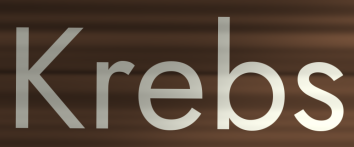
Krebs